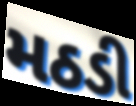
મઠડી